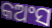
କଅଂସ